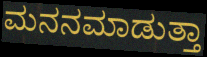
ಮನನಮಾಡುತ್ತಾ